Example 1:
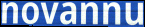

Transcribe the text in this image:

novannu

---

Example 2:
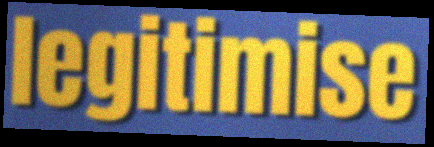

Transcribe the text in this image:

legitimise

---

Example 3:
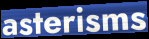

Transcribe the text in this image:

asterisms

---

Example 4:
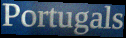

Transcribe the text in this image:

Portugals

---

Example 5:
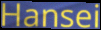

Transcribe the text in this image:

Hansei